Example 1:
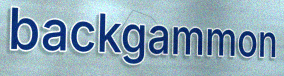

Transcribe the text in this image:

backgammon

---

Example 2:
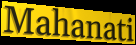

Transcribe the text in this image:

Mahanati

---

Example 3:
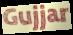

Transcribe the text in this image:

Gujjar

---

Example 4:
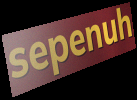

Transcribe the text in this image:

sepenuh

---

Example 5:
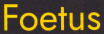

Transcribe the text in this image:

Foetus